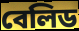
বেলিড